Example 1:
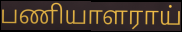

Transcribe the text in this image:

பணியாளராய்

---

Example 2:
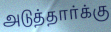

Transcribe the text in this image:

அடுத்தார்க்கு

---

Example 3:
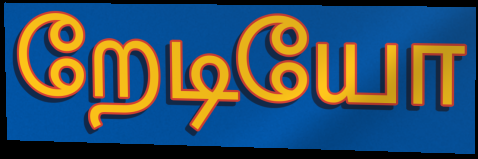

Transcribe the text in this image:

றேடியோ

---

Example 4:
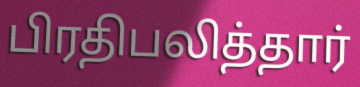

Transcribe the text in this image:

பிரதிபலித்தார்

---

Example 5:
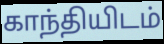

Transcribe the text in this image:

காந்தியிடம்